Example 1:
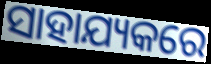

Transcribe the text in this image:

ସାହାଯ୍ୟକରେ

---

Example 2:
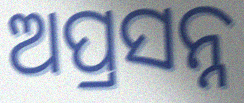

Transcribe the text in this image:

ଅପ୍ରସନ୍ନ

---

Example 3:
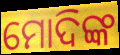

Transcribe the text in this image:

ମୋଦିଙ୍କ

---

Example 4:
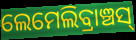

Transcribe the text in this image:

ଲେମେଲିବ୍ରାଞ୍ଚସ୍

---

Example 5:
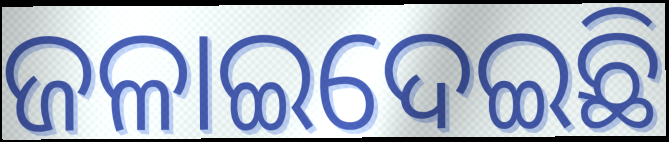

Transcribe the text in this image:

ଜଳାଇଦେଇଛି